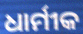
ଧାର୍ମୀକ